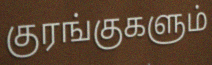
குரங்குகளும்